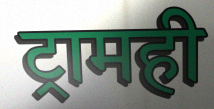
ट्रामही